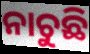
ନାଚୁଛି